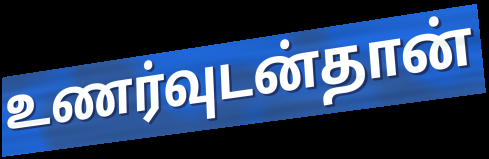
உணர்வுடன்தான்